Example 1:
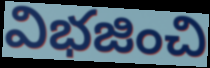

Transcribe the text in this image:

విభజించి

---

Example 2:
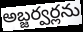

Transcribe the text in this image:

అబ్జర్వర్లను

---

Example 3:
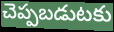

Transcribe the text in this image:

చెప్పబడుటకు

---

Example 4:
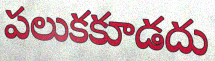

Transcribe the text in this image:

పలుకకూడదు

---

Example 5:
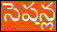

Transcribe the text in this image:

సెషన్ల